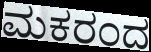
ಮಕರಂದ